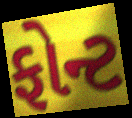
ફોન્ટ